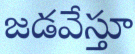
జడవేస్తూ